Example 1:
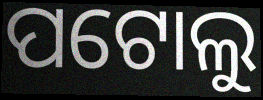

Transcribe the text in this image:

ପଟୋଲୁ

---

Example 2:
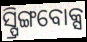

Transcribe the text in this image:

ସ୍ପ୍ରିଙ୍ଗବୋକ୍ସ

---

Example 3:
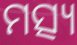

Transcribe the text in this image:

ମତ୍ସ୍ୟ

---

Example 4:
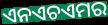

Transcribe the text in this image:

ଏନଏଚଏମର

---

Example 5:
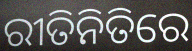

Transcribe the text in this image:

ରୀତିନିତିରେ